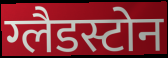
ग्लैडस्टोन